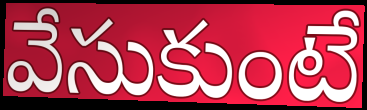
వేసుకుంటే